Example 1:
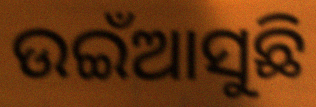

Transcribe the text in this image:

ଉଇଁଆସୁଛି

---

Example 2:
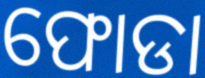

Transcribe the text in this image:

ଫୋଡା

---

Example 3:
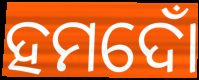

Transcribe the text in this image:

ହମଦୋଁ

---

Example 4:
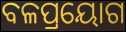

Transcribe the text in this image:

ବଳପ୍ରୟୋଗ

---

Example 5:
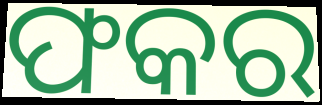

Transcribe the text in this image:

ଫକର